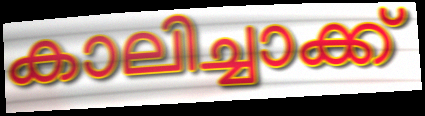
കാലിച്ചാക്ക്